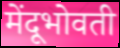
मेंदूभोवती